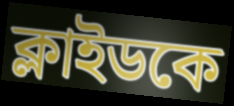
ক্লাইডকে